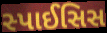
સ્પાઈસિસ